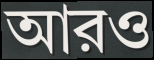
আরও